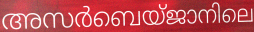
അസർബെയ്ജാനിലെ